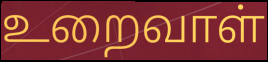
உறைவாள்